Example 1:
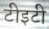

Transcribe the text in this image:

टीइटी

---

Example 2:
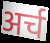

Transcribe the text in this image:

अर्च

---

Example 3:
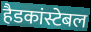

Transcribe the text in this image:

हैडकांस्टेबल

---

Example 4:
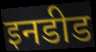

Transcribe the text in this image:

इनडीड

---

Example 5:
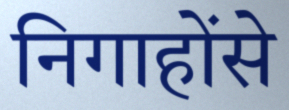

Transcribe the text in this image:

निगाहोंसे